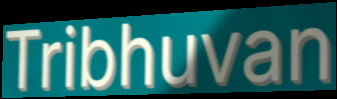
Tribhuvan